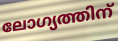
ലോഗ്യത്തിന്